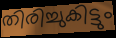
തിരിച്ചുകിട്ടും